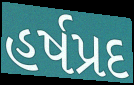
હર્ષપ્રદ